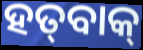
ହତ୍‌ବାକ୍